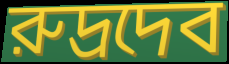
রুদ্রদেব